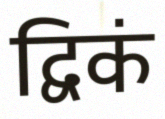
द्विकं